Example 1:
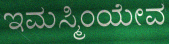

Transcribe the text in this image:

ಇಮಸ್ಮಿಂಯೇವ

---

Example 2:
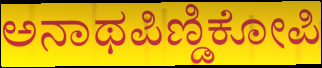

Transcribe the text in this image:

ಅನಾಥಪಿಣ್ಡಿಕೋಪಿ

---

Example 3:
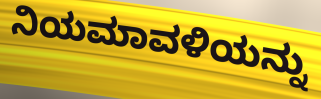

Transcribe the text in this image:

ನಿಯಮಾವಳಿಯನ್ನು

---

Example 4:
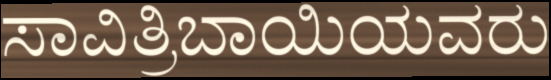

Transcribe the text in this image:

ಸಾವಿತ್ರಿಬಾಯಿಯವರು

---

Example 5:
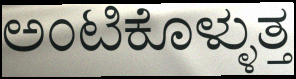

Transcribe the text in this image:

ಅಂಟಿಕೊಳ್ಳುತ್ತ